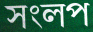
সংলপ